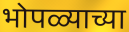
भोपळ्याच्या